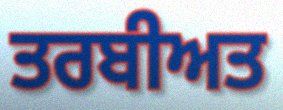
ਤਰਬੀਅਤ